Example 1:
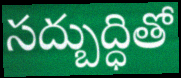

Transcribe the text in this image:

సద్బుద్ధితో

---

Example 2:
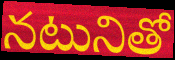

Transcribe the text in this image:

నటునితో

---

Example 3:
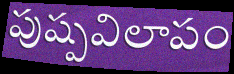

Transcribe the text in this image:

పుష్పవిలాపం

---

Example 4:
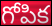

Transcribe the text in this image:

గోపిక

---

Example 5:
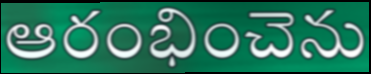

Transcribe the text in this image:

ఆరంభించెను